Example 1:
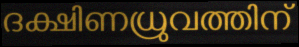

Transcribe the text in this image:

ദക്ഷിണധ്രുവത്തിന്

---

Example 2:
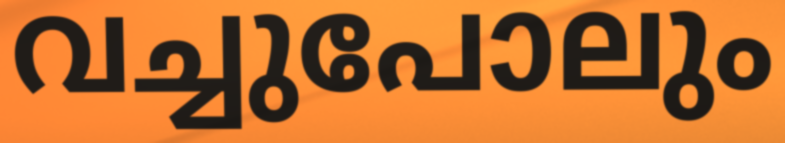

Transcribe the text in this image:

വച്ചുപോലും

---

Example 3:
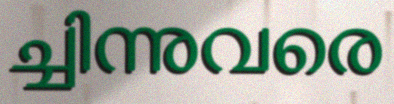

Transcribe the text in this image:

ച്ചിന്നുവരെ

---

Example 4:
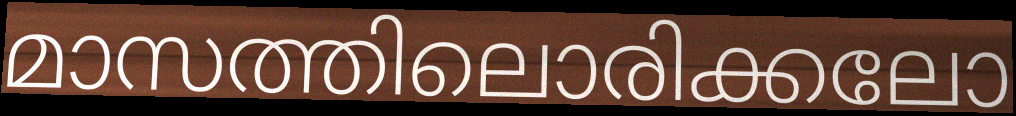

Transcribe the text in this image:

മാസത്തിലൊരിക്കലോ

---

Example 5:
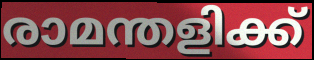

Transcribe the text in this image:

രാമന്തളിക്ക്